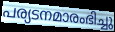
പര്യടനമാരംഭിച്ചു